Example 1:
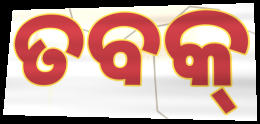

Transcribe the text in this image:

ତବକ୍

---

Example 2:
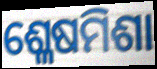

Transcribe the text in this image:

ଶ୍ଳେଷମିଶା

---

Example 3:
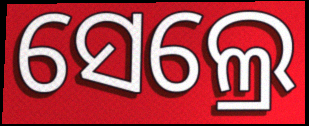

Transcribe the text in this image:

ସେଲ୍ରେ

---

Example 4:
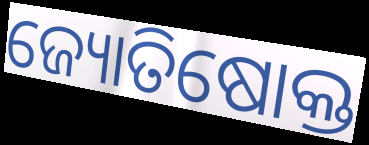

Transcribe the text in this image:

ଜ୍ୟୋତିଷୋକ୍ତ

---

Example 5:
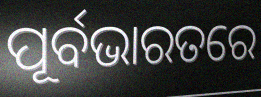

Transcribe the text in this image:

ପୂର୍ବଭାରତରେ